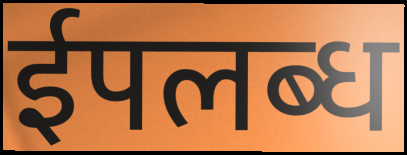
ईपलब्ध